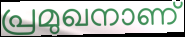
പ്രമുഖനാണ്